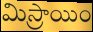
మిస్రాయిం